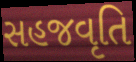
સહજવૃતિ